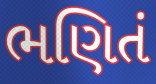
ભણિતં